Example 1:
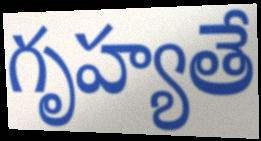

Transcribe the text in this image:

గృహ్యతే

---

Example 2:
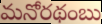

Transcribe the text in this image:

మనోరథంబు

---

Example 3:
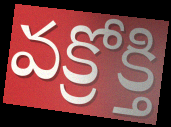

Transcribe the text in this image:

వక్రోక్తి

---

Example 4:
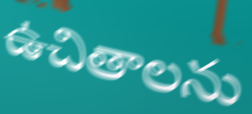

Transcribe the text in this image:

ఉచితాలను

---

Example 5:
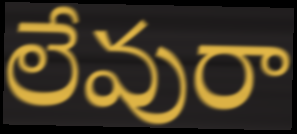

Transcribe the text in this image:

లేవురా